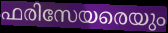
ഫരിസേയരെയും